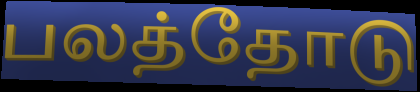
பலத்தோடு